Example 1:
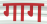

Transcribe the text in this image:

गाग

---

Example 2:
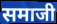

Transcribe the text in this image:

समाजी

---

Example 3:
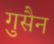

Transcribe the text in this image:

गुसैन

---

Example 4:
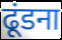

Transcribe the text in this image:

ढूंडना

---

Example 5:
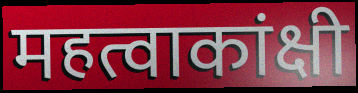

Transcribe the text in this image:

महत्‍वाकांक्षी